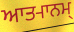
ਆਤ੍ਮਾਨਮ੍